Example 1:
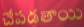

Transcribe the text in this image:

చేపడతాయి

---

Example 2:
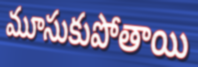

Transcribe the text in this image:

మూసుకుపోతాయి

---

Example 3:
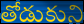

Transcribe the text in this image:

తోడుకుని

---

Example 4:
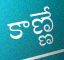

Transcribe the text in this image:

కాణ్ణే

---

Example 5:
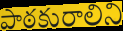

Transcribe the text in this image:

పాఠకురాలిని